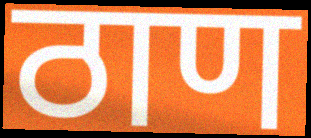
ठाण